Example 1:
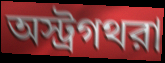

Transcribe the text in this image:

অস্ট্রগথরা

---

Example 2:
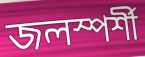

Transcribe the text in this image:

জলস্পর্শী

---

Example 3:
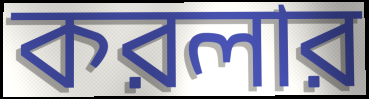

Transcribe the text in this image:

করলার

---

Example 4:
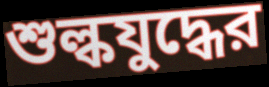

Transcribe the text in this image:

শুল্কযুদ্ধের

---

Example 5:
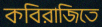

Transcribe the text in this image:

কবিরাজিতে